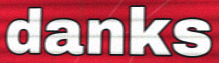
danks